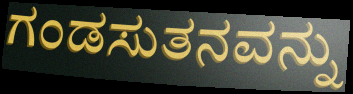
ಗಂಡಸುತನವನ್ನು